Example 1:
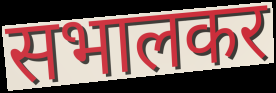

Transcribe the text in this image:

सभालकर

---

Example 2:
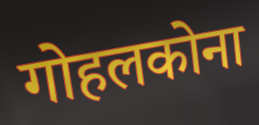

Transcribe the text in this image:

गोहलकोना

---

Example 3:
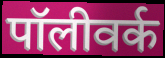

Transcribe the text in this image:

पॉलीवर्क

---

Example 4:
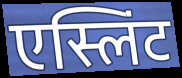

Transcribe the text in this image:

एस्लिंट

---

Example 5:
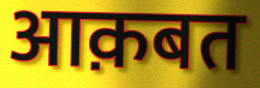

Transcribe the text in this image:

आक़बत